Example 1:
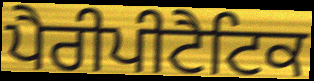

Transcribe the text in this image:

ਪੈਰੀਪੀਟੈਟਿਕ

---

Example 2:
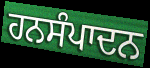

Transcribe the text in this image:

ਹਨਸੰਪਾਦਨ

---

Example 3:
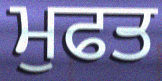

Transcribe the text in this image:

ਮੁਫਤ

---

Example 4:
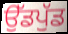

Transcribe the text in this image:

ਉੱਡਪੁੱਡ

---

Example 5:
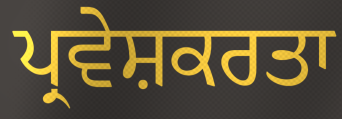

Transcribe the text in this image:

ਪ੍ਰਵੇਸ਼ਕਰਤਾ